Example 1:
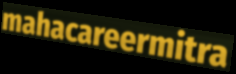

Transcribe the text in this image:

mahacareermitra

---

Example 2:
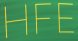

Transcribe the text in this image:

HFE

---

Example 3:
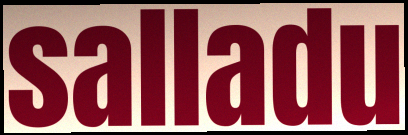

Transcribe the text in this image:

salladu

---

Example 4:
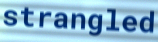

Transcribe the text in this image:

strangled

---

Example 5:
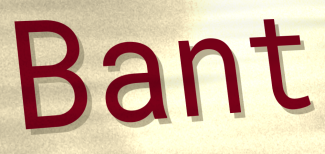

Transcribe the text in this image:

Bant